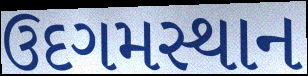
ઉદગમસ્થાન